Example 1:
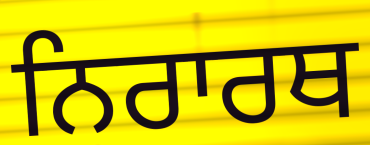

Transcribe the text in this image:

ਨਿਰਾਰਥ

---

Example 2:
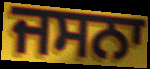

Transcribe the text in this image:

ਜਸਨਾ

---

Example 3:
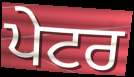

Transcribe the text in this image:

ਪੇਟਰ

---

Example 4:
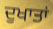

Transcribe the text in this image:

ਦੁਖਾਤਾਂ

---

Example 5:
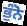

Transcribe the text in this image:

ਭੁੰਨੋ